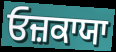
ਓਜ਼ਕਾਯਾ